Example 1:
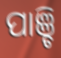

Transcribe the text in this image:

ପାଞ୍ଚି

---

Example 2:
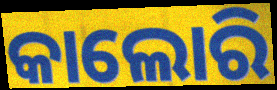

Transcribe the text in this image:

କାଲୋରି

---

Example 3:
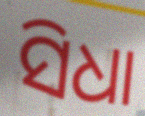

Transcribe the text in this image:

ସିଧା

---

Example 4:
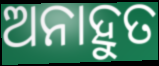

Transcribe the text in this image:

ଅନାହୁତ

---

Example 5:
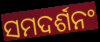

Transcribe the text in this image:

ସମଦର୍ଶନଂ